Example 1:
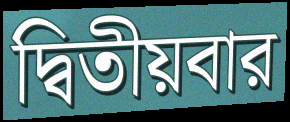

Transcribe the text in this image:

দ্বিতীয়বার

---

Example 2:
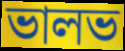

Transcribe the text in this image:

ভালভ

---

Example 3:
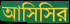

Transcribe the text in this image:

আসিসির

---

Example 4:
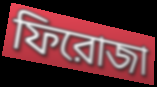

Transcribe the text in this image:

ফিরোজা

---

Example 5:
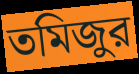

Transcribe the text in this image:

তমিজুর